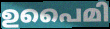
ഉപൈമി